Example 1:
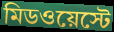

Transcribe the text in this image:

মিডওয়েস্টে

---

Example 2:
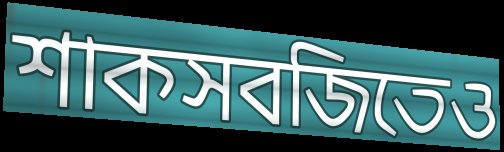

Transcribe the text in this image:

শাকসবজিতেও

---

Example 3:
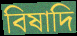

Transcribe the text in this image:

বিষাদি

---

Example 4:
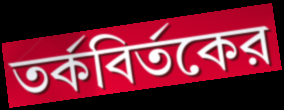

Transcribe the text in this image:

তর্কবির্তকের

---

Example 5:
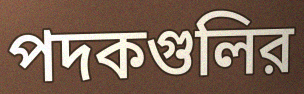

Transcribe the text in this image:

পদকগুলির